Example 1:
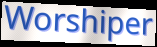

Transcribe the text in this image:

Worshiper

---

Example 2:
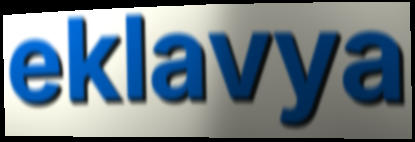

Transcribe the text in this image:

eklavya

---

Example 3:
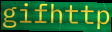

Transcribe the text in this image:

gifhttp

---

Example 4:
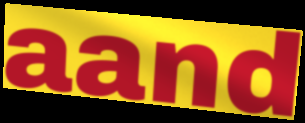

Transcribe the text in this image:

aand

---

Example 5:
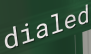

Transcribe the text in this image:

dialed